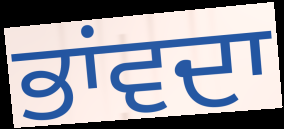
ਭਾਂਵਦਾ